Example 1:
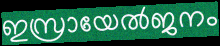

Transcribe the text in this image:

ഇസ്രായേൽജനം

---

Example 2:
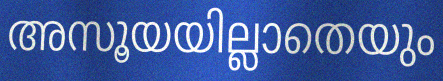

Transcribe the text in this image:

അസൂയയില്ലാതെയും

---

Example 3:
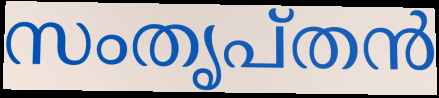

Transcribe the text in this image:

സംതൃപ്തൻ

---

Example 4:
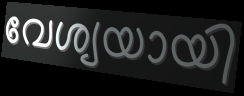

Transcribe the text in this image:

വേശ്യയായി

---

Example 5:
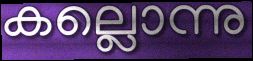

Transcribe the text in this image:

കല്ലൊന്നു